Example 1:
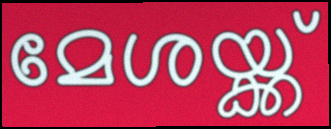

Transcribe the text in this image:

മേശയ്ക്ക്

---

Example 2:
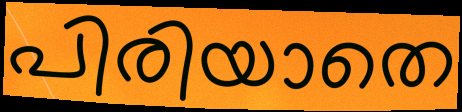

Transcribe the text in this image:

പിരിയാതെ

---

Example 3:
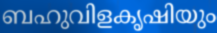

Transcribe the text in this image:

ബഹുവിളകൃഷിയും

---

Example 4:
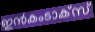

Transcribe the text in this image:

ഇൻകംടാക്സ്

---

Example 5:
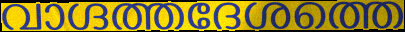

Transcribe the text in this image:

വാഗ്ദത്തദേശത്തെ